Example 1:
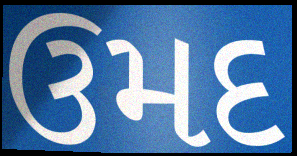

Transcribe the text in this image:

ઉમદ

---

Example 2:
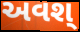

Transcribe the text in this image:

અવશ્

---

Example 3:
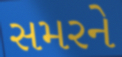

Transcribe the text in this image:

સમરને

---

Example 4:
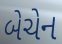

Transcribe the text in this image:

બેચેન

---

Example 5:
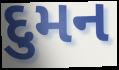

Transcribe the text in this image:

દુમન